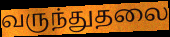
வருந்துதலை